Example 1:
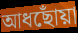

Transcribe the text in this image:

আধছোঁয়া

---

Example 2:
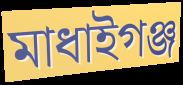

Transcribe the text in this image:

মাধাইগঞ্জ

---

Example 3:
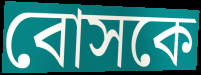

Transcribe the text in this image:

বোসকে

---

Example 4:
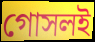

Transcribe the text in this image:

গোসলই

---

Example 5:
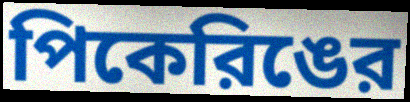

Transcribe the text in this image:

পিকেরিঙের